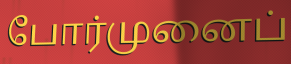
போர்முனைப்